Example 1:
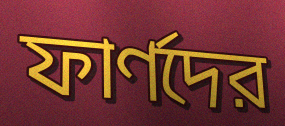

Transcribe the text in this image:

ফার্ণদের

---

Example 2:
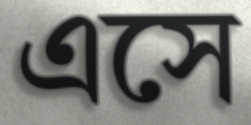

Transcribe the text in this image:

এসে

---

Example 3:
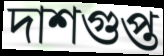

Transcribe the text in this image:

দাশগুপ্ত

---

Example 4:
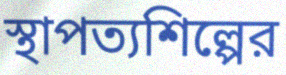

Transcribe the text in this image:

স্থাপত্যশিল্পের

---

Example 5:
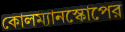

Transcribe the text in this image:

কোলম্যানস্কোপের